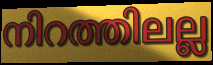
നിറത്തിലല്ല